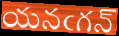
యనఁగన్